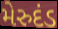
મેરુદંડ